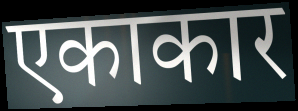
एकाकार